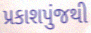
પ્રકાશપુંજથી